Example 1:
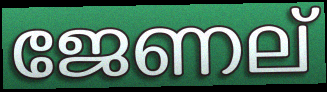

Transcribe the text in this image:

ജേണല്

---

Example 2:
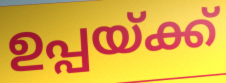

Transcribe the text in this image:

ഉപ്പയ്ക്ക്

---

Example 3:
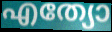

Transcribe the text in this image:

എത്യോ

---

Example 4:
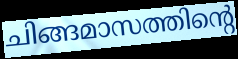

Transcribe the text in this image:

ചിങ്ങമാസത്തിന്റെ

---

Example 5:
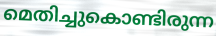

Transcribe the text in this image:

മെതിച്ചുകൊണ്ടിരുന്ന